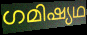
ഗമിഷ്യഥ